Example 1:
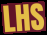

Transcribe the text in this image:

LHS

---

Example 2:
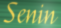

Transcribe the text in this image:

Senin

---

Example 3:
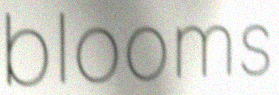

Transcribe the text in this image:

blooms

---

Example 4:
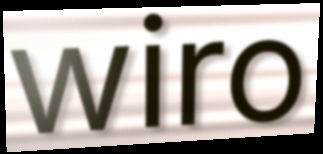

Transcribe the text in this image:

wiro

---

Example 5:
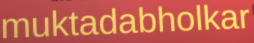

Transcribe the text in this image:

muktadabholkar